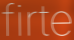
firte